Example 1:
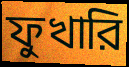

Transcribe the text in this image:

ফুখারি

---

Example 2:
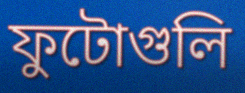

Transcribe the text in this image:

ফুটোগুলি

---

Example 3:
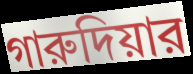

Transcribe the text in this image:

গারুদিয়ার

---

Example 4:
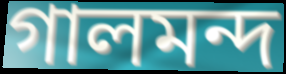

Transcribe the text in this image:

গালমন্দ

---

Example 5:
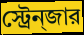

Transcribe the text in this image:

স্ট্রেন্জার